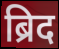
ब्रिद